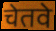
चेतवे